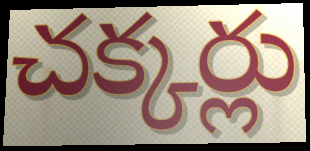
చక్కర్లు